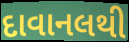
દાવાનલથી